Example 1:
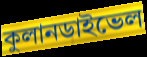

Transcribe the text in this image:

কুলানডাইভেল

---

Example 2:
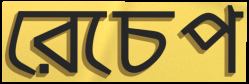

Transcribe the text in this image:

রেচেপ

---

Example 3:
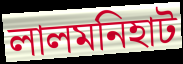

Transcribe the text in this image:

লালমনিহাট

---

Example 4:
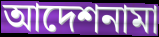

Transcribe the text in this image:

আদেশনামা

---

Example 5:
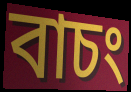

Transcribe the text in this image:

বাচং